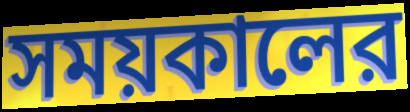
সময়কালের